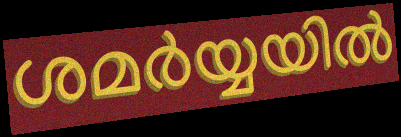
ശമർയ്യയിൽ